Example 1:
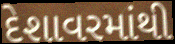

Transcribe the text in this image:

દેશાવરમાંથી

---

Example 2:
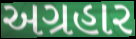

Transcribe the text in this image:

અગ્રહાર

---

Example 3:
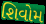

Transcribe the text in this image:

શિવોમ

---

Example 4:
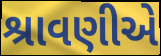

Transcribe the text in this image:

શ્રાવણીએ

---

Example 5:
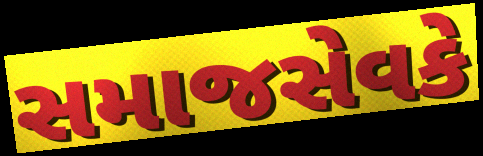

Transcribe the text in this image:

સમાજસેવકે